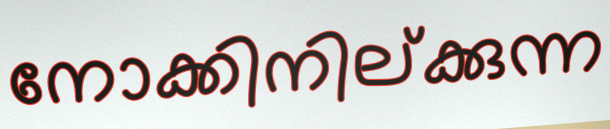
നോക്കിനില്ക്കുന്ന